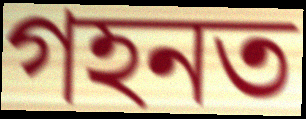
গহনত